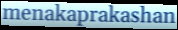
menakaprakashan